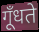
गूँधते